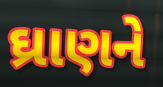
ઘ્રાણને